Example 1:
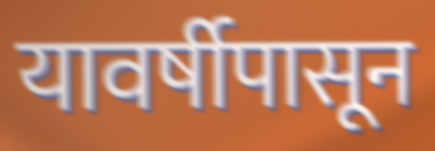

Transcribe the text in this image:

यावर्षीपासून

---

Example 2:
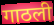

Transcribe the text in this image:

गाठली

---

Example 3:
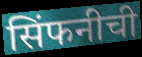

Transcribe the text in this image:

सिंफनीची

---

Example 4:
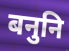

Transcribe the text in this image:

बनुनि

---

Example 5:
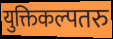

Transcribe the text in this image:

युक्तिकल्पतरु